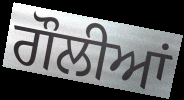
ਗੌਲੀਆਂ